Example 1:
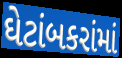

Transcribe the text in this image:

ઘેટાંબકરાંમાં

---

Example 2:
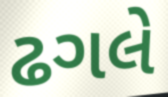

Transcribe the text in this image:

ઢગલે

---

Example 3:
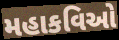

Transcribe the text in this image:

મહાકવિઓ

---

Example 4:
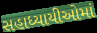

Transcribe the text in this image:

સહાધ્યાયીઓમાં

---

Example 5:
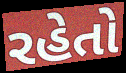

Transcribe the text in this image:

રહેતો